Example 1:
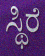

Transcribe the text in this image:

ಸ್ಥಿರೆ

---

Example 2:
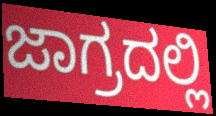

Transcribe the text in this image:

ಜಾಗ್ರದಲ್ಲಿ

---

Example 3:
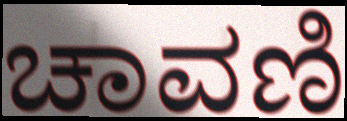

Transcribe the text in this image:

ಚಾವಣಿ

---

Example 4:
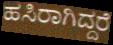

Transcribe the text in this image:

ಹಸಿರಾಗಿದ್ದರೆ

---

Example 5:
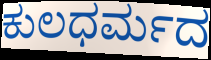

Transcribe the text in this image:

ಕುಲಧರ್ಮದ